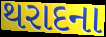
થરાદના